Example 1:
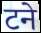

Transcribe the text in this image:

टने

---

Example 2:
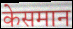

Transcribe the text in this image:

केसमान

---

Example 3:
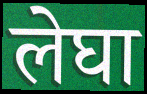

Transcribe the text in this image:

लेघा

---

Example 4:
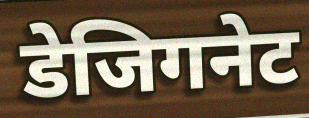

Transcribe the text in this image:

डेजिगनेट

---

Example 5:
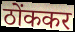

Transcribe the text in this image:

ठोंककर